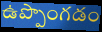
ఉప్పొంగడం